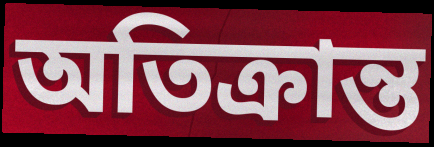
অতিক্রান্ত